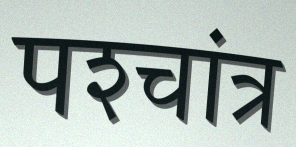
पश्चांत्र